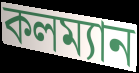
কলম্যান